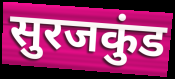
सुरजकुंड